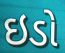
ઇડો